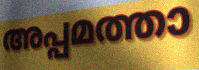
അപ്പമത്താ